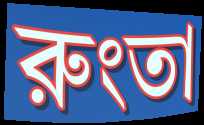
রুংতা